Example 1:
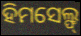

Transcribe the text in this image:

ହିମସେଲ୍ଫ୍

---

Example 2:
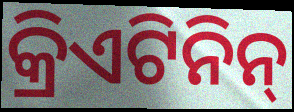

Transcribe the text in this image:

କ୍ରିଏଟିନିନ୍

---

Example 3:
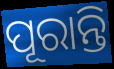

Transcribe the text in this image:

ପୂରାନ୍ତି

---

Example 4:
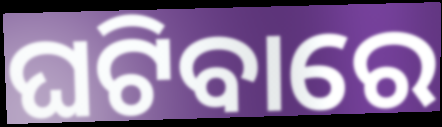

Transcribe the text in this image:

ଘଟିବାରେ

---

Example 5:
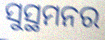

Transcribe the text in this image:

ସୁସ୍ଥମନର